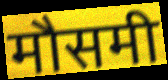
मौसमी